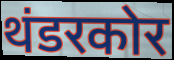
थंडरकोर